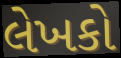
લેખકો